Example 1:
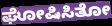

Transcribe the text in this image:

ಘೋಷಿಸಿತೋ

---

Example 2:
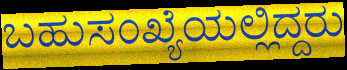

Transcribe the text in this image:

ಬಹುಸಂಖ್ಯೆಯಲ್ಲಿದ್ದರು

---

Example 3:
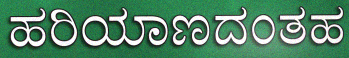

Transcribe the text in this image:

ಹರಿಯಾಣದಂತಹ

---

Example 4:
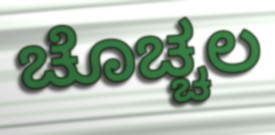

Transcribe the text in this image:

ಚೊಚ್ಚಲ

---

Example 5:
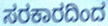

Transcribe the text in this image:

ಸರಕಾರದಿಂದ